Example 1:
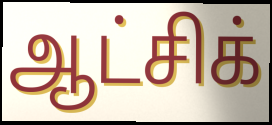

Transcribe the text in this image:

ஆட்சிக்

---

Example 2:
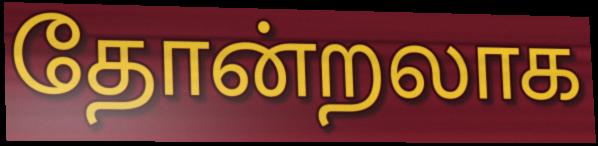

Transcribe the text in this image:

தோன்றலாக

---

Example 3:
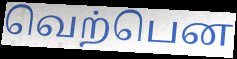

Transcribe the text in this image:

வெற்பென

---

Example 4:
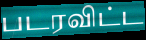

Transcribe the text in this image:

படரவிட்ட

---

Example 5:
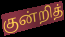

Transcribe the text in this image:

குன்றித்